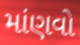
માંણવો